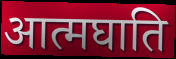
आत्मघाति